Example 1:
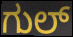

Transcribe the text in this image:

ಗುಲ್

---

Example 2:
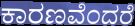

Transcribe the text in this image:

ಕಾರಣವೆಂದರೆ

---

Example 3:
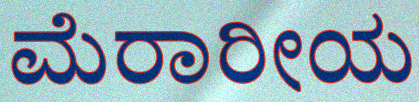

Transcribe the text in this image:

ಮೆರಾರೀಯ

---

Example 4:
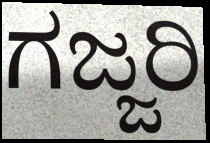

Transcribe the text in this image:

ಗಜ್ಜರಿ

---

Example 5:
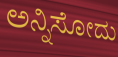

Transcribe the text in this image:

ಅನ್ನಿಸೋದು